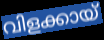
വിളക്കായ്